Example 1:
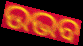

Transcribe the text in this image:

ଉଭବ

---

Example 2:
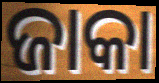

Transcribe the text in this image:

ଜାକା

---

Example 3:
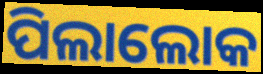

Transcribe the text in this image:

ପିଲାଲୋକ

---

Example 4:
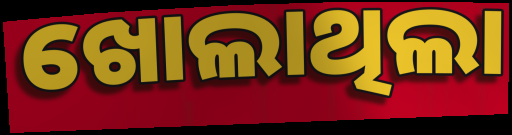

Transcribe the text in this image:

ଖୋଲାଥିଲା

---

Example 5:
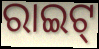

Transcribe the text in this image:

ରାଇଟ୍